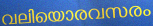
വലിയൊരവസരം